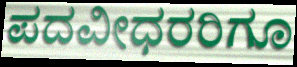
ಪದವೀಧರರಿಗೂ